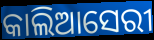
କାଲିଆସେରୀ